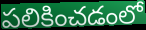
పలికించడంలో